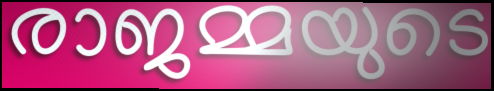
രാജമ്മയുടെ